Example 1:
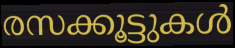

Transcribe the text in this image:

രസക്കൂട്ടുകൾ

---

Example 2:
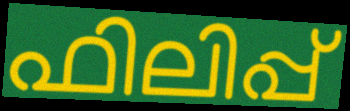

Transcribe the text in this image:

ഫിലിപ്പ്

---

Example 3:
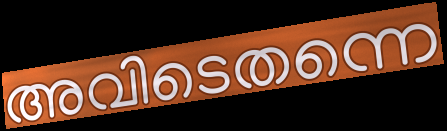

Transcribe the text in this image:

അവിടെതന്നെ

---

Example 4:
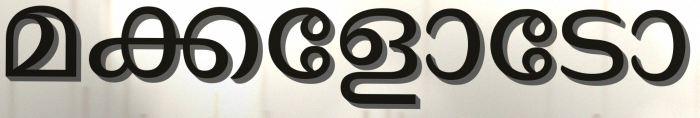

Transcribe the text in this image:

മക്കളോടോ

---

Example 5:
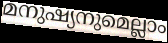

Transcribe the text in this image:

മനുഷ്യനുമെല്ലാം